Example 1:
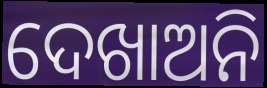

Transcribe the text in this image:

ଦେଖାଅନି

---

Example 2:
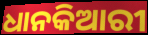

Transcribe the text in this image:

ଧାନକିଆରୀ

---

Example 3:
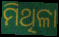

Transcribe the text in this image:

ମିଥିଳା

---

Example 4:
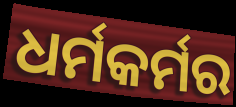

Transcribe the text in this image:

ଧର୍ମକର୍ମର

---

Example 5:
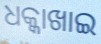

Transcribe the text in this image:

ଧକ୍କାଖାଇ